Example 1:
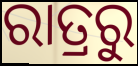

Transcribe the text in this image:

ରାତ୍ରରୁ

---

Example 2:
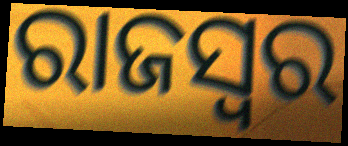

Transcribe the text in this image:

ରାଜସ୍ୱର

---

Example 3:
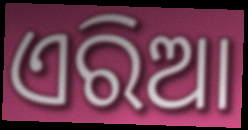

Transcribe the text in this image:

ଏରିଆ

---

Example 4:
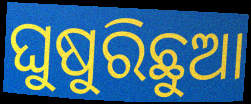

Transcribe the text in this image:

ଘୁଷୁରିଛୁଆ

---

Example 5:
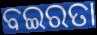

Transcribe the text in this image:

ବଇରତା